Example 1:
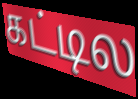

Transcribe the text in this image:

கட்டில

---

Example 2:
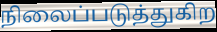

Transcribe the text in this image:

நிலைப்படுத்துகிற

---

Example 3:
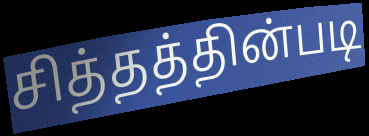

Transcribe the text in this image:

சித்தத்தின்படி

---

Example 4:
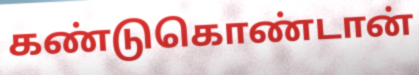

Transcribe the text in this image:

கண்டுகொண்டான்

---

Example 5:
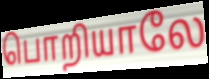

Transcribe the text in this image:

பொறியாலே